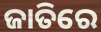
ଜାତିରେ